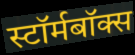
स्टॉर्मबॉक्स